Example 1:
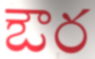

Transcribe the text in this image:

ఔర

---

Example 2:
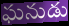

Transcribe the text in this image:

ఘనుడు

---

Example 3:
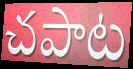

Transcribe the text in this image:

చపాట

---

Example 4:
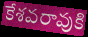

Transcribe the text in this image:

కేశవరావుకి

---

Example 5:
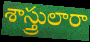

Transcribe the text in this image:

శాస్త్రులారా